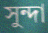
সুন্দা